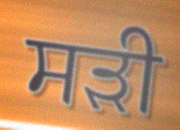
ਸੜੀ